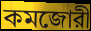
কমজোরী